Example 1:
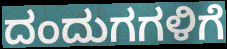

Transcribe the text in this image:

ದಂದುಗಗಳಿಗೆ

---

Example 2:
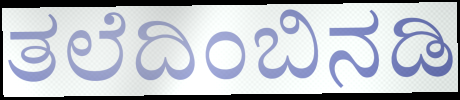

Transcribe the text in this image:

ತಲೆದಿಂಬಿನಡಿ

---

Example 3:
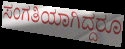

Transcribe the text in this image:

ಸಂಗತಿಯಾಗಿದ್ದರೂ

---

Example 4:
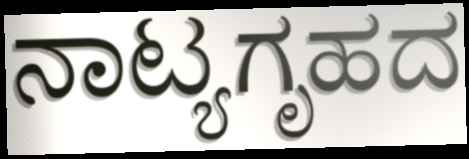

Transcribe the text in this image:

ನಾಟ್ಯಗೃಹದ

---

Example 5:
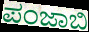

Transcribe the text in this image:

ಪಂಜಾಬಿ